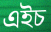
এইচ